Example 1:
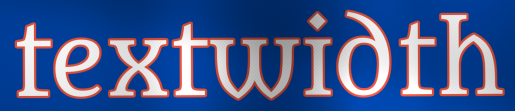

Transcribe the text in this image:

textwidth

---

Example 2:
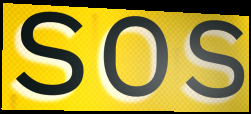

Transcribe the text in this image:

sos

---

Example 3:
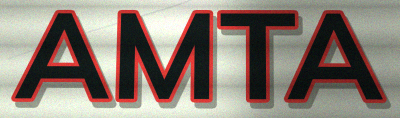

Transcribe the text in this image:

AMTA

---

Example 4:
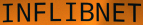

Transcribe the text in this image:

INFLIBNET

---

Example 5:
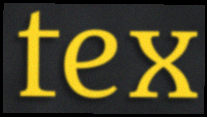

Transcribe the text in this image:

tex